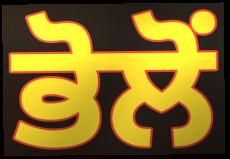
ਭੋਲੋਂ